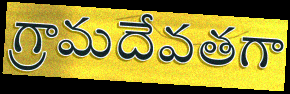
గ్రామదేవతగా